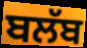
ਬਲੱਬ